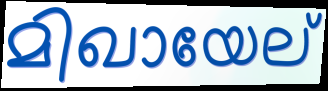
മിഖായേല്